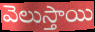
వెలుస్తాయి